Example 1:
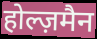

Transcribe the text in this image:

होल्ज़मैन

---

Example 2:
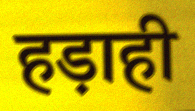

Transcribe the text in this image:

हड़ाही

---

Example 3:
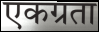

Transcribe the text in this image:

एकग्रता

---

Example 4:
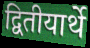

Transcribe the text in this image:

द्वितीयार्थे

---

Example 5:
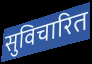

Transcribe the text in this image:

सुविचारित